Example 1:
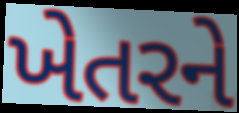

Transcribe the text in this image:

ખેતરને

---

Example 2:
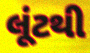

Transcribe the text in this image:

લૂંટથી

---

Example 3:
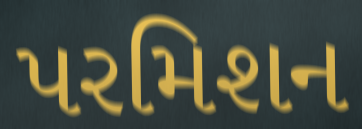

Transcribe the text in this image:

પરમિશન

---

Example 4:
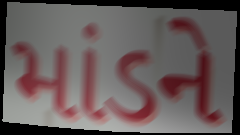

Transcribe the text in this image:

માંડને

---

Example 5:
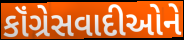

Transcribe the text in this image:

કૉંગ્રેસવાદીઓને